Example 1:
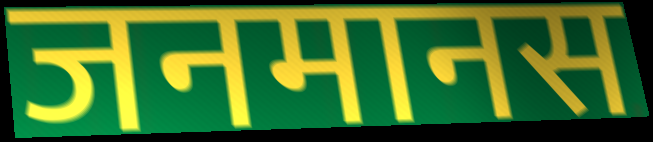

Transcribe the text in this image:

जनमानस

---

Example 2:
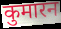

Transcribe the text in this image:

कुमारन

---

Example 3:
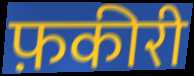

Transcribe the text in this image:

फ़कीरी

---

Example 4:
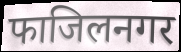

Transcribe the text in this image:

फाजिलनगर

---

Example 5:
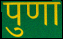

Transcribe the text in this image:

पुणा